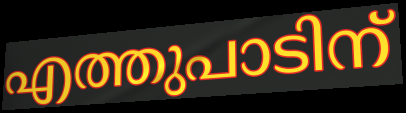
എത്തുപാടിന്